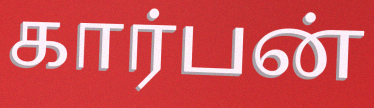
கார்பன்